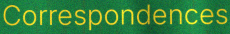
Correspondences